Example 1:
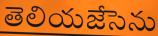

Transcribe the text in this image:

తెలియజేసెను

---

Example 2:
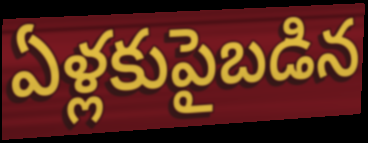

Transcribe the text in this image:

ఏళ్లకుపైబడిన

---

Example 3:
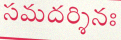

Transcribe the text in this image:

సమదర్శినః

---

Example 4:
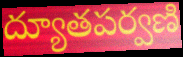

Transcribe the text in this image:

ద్యూతపర్వణి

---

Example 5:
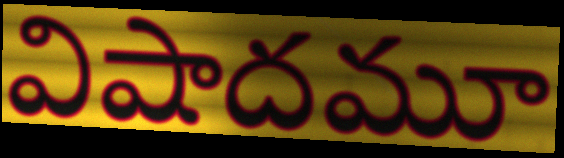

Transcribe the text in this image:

విషాదమూ